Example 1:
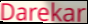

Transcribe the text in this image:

Darekar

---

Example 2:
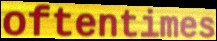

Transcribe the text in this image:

oftentimes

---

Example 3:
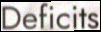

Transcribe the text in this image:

Deficits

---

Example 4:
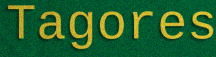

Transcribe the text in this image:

Tagores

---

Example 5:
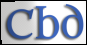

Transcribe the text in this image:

Cbd